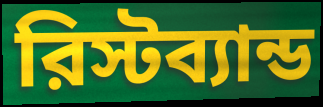
রিস্টব্যান্ড